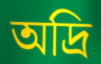
অদ্রি